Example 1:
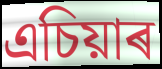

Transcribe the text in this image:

এচিয়াৰ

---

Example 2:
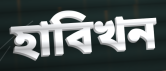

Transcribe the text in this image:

হাবিখন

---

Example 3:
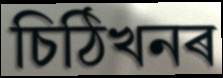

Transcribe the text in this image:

চিঠিখনৰ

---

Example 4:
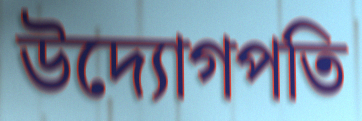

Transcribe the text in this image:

উদ্যোগপতি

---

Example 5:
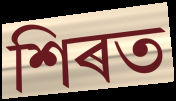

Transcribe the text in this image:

শিৰত